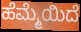
ಹೆಮ್ಮೆಯಿದೆ